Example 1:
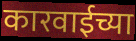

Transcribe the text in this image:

कारवाईच्या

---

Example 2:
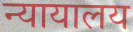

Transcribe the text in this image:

न्यायालय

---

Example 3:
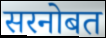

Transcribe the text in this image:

सरनोबत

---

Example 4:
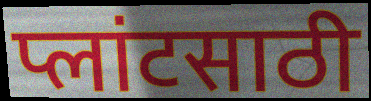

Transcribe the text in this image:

प्लांटसाठी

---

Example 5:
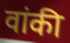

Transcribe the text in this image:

वांकी